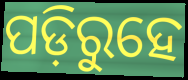
ପଡ଼ିରୁହେ